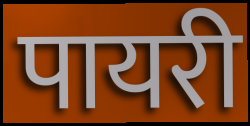
पायरी